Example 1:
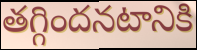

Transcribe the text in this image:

తగ్గిందనటానికి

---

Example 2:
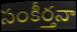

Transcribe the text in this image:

సంకీర్తనా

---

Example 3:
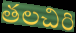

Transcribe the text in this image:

తలచిరి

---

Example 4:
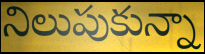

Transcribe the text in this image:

నిలుపుకున్నా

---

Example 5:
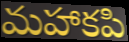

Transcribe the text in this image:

మహాకపి